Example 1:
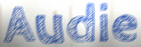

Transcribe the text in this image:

Audie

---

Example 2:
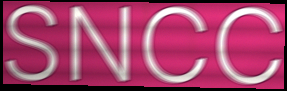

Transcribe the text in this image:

SNCC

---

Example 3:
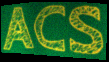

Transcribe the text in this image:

ACS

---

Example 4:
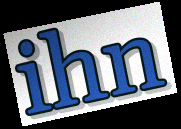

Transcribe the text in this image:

ihn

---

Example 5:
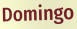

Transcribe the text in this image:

Domingo